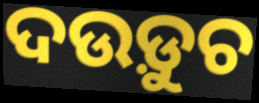
ଦଉଡ଼ୁଚ